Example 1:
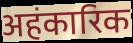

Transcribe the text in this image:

अहंकारिक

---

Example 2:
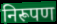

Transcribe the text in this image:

निरूपण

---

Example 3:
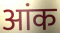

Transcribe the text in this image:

आंक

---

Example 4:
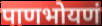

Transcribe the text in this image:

पाणभोयणं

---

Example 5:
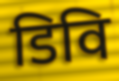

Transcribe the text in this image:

डिवि